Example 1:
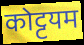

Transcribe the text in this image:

कोट्टयम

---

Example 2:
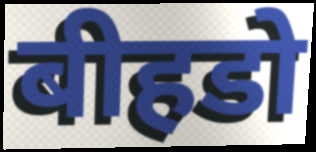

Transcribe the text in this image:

बीहडो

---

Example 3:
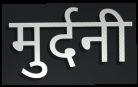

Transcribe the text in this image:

मुर्दनी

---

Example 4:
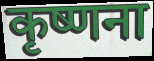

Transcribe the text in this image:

कृष्णना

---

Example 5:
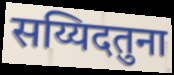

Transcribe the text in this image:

सय्यिदतुना